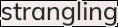
strangling